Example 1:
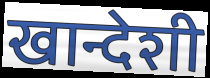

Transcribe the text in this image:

खान्देशी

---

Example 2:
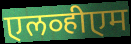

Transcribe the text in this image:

एलव्हीएम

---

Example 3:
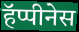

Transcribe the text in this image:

हॅप्पीनेस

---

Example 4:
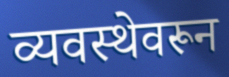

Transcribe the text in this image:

व्यवस्थेवरून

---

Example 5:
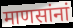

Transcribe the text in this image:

माणसांनां